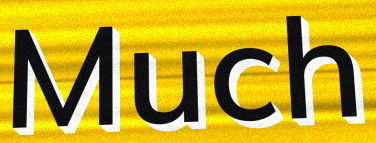
Much